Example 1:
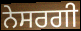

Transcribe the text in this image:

ਨੇਸਰਗੀ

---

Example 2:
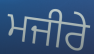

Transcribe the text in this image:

ਮਜੀਰੇ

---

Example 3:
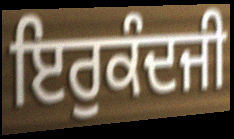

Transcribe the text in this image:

ਇਰੁਕੰਦਜੀ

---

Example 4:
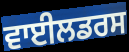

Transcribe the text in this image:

ਵਾਈਲਡਰਸ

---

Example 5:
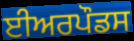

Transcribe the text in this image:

ਈਅਰਪੌਡਸ